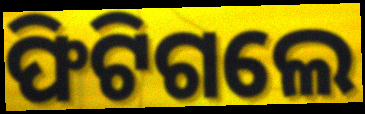
ଫିଟିଗଲେ